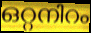
ഒറ്റനിറം